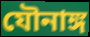
যৌনাঙ্গ